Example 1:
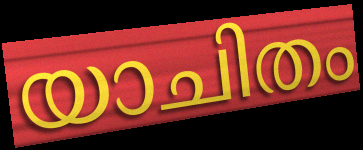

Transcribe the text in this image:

യാചിതം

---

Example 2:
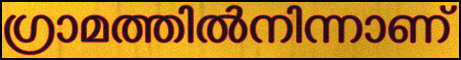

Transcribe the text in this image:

ഗ്രാമത്തിൽനിന്നാണ്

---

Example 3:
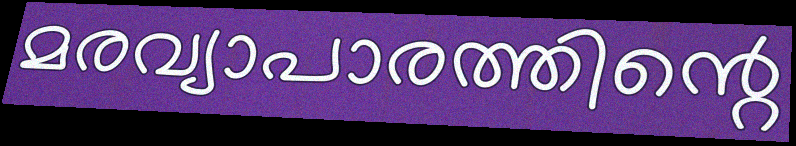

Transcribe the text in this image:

മരവ്യാപാരത്തിന്റെ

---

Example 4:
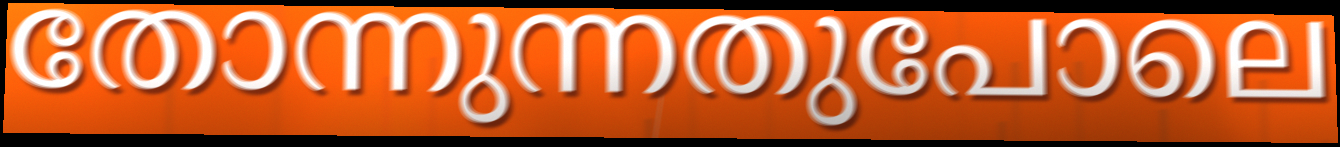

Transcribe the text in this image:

തോന്നുന്നതുപോലെ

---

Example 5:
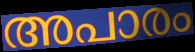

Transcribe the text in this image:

അപാരം